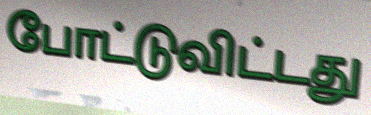
போட்டுவிட்டது